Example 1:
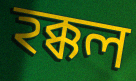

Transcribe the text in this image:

হক্কল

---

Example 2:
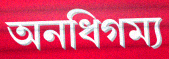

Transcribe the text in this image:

অনধিগম্য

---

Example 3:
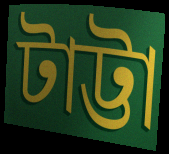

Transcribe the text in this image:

টাট্টা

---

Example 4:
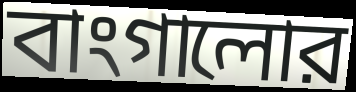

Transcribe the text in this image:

বাংগালোর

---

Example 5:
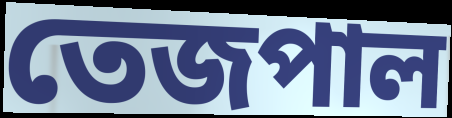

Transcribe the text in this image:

তেজপাল